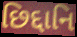
છિદ્દાનિ